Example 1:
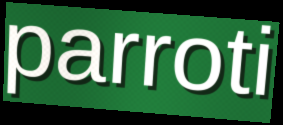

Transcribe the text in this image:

parroti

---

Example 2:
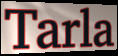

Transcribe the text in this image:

Tarla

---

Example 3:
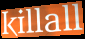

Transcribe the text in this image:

killall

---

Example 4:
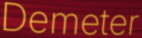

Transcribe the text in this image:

Demeter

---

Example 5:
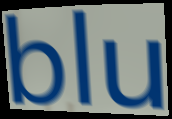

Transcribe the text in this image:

blu